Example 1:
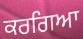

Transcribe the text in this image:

ਕਰਗਿਆ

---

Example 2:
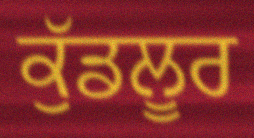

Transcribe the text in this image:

ਕੁੱਡਲੂਰ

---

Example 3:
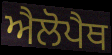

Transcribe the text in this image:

ਐਲੋਪੈਥ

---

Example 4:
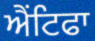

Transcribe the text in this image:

ਐਂਟਿਫਾ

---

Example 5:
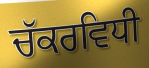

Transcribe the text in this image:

ਚੱਕਰਵਿਧੀ